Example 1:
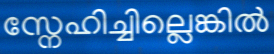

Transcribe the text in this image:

സ്നേഹിച്ചില്ലെങ്കിൽ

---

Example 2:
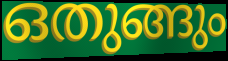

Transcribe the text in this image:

ഒതുങ്ങും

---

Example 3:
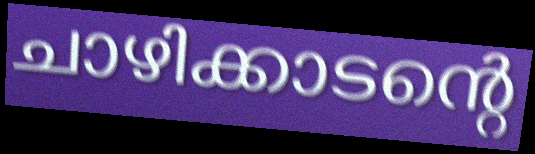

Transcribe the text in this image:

ചാഴിക്കാടന്റെ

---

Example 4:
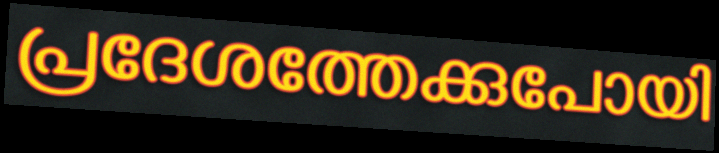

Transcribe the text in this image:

പ്രദേശത്തേക്കുപോയി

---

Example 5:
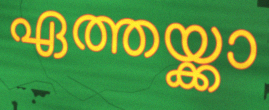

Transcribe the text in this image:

ഏത്തയ്ക്കാ